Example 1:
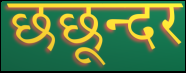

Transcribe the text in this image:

छछून्दर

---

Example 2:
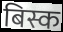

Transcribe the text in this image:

बिस्क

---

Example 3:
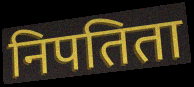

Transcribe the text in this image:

निपतिता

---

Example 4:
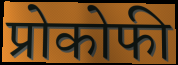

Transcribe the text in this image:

प्रोकोफी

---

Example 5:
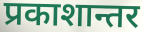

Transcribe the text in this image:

प्रकाशान्तर